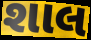
શાલ